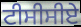
ਟੀਸੀਸੀਏ